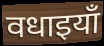
वधाइयाँ